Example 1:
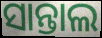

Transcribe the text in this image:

ସାନ୍ତାଲ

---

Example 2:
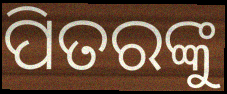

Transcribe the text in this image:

ପିତରଙ୍କୁ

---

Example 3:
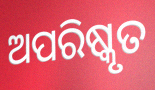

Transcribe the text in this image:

ଅପରିଷ୍କୃତ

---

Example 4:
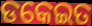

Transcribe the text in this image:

ଡକେଇତ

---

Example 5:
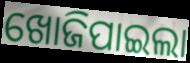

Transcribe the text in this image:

ଖୋଜିପାଇଲା